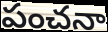
పంచనా